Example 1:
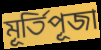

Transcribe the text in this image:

মূৰ্তিপূজা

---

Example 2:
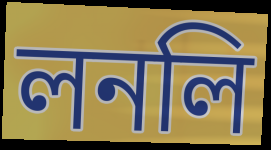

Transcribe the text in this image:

লনলি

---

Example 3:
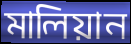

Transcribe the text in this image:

মালিয়ান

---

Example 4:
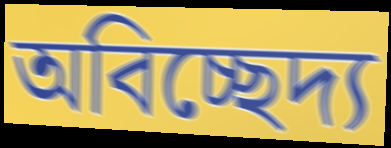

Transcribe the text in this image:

অবিচ্ছেদ্য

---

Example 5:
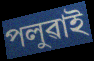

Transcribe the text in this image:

পলুৱাই